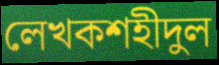
লেখকশহীদুল